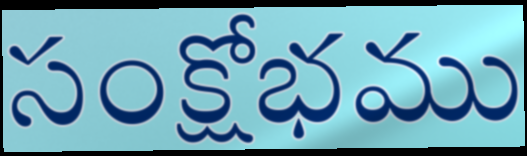
సంక్షోభము